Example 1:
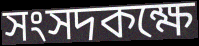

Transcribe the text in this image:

সংসদকক্ষে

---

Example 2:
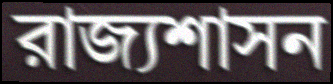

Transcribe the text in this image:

রাজ্যশাসন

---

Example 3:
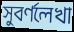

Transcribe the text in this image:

সুবর্ণলেখা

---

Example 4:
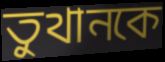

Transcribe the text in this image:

তুথানকে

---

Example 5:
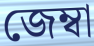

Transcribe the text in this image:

জেম্বা